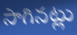
సాగినట్లు